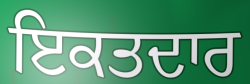
ਇਕਤਦਾਰ